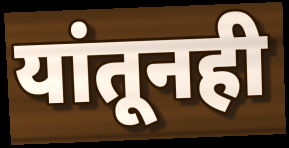
यांतूनही